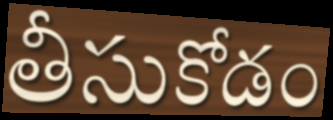
తీసుకోడం